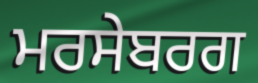
ਮਰਸੇਬਰਗ